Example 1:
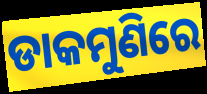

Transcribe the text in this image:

ଡାକମୁଣିରେ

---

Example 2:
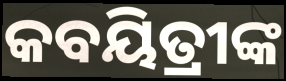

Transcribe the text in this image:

କବୟିତ୍ରୀଙ୍କ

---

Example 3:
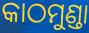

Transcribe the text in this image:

କାଠମୁଣ୍ଡା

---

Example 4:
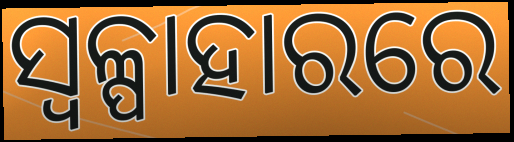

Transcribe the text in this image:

ସ୍ୱଳ୍ପାହାରରେ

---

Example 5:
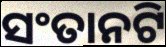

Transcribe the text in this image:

ସଂତାନଟି